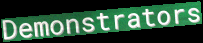
Demonstrators